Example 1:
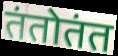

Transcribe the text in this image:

तंतोतंत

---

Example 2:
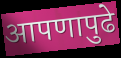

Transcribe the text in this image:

आपणापुढे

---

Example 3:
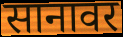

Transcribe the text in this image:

सानावर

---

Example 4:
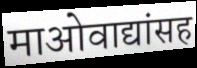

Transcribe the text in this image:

माओवाद्यांसह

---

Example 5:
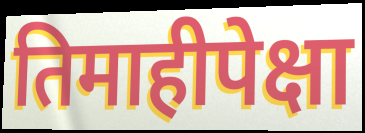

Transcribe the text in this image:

तिमाहीपेक्षा